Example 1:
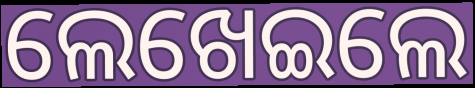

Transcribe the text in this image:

ଲେଖେଇଲେ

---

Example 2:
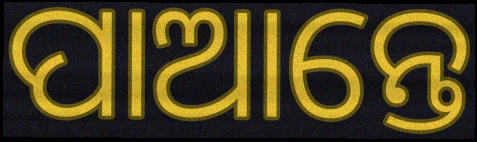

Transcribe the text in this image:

ପାଆନ୍ତେ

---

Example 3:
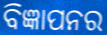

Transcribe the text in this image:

ବିଜ୍ଞାପନର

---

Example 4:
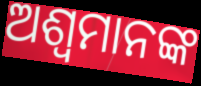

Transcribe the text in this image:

ଅଶ୍ୱମାନଙ୍କ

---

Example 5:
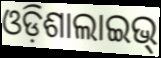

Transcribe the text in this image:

ଓଡ଼ିଶାଲାଇଭ୍